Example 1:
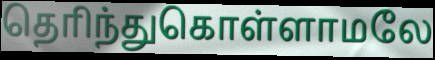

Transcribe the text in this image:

தெரிந்துகொள்ளாமலே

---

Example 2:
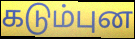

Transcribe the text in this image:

கடும்புன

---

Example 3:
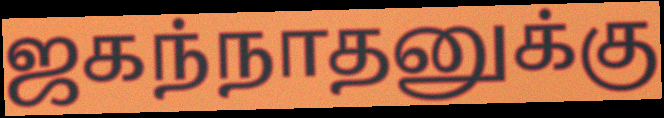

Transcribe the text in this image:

ஜகந்நாதனுக்கு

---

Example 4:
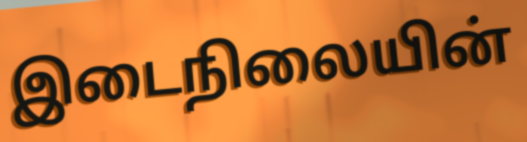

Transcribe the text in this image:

இடைநிலையின்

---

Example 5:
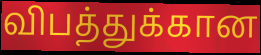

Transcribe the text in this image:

விபத்துக்கான